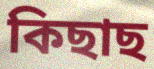
কিছাছ